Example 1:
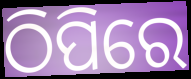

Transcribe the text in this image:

ଠିପିରେ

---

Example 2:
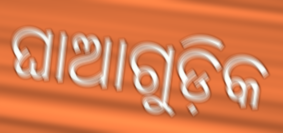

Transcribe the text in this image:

ଘାଆଗୁଡ଼ିକ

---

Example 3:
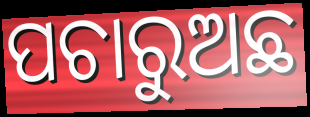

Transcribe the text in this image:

ପଚାରୁଅଛ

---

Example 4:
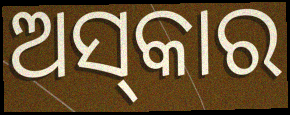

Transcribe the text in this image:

ଅସ୍‌କାର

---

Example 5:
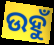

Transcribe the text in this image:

ଉହୁଁ